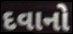
દવાનો